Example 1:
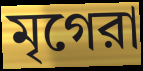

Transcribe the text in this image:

মৃগেরা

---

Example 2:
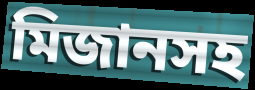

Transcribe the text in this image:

মিজানসহ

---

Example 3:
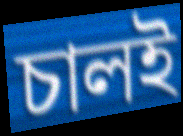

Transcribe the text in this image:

চালই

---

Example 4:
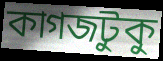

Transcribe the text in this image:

কাগজটুকু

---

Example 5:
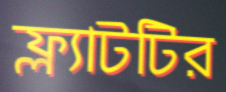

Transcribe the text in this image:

ফ্ল্যাটটির